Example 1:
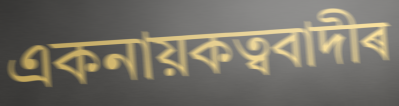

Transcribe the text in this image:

একনায়কত্ববাদীৰ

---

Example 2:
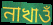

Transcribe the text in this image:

নাখাওঁ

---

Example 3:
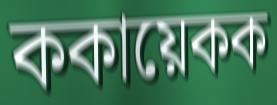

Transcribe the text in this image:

ককায়েকক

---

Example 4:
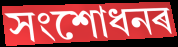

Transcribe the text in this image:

সংশোধনৰ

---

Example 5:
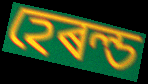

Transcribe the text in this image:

হেৰল্ড